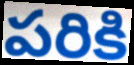
పరికి